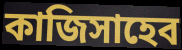
কাজিসাহেব